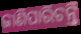
ଜାଣିପାରିଚନ୍ତି